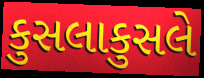
કુસલાકુસલે